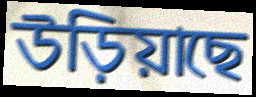
উড়িয়াছে